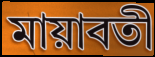
মায়াবতী